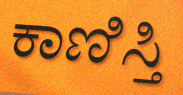
ಕಾಣಿಸ್ತಿ